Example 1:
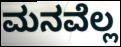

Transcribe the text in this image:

ಮನವೆಲ್ಲ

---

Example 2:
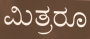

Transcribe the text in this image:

ಮಿತ್ರರೂ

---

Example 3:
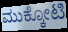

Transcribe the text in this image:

ಮುಕ್ಕೋಟಿ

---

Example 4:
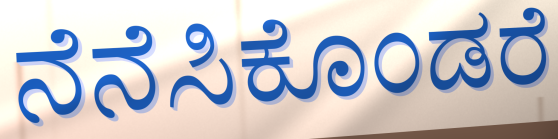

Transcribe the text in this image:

ನೆನೆಸಿಕೊಂಡರೆ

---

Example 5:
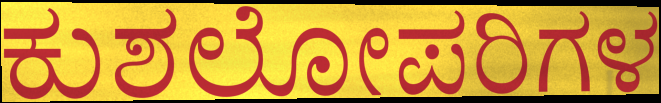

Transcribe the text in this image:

ಕುಶಲೋಪರಿಗಳ